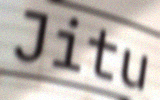
Jitu